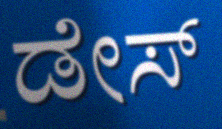
ಡೇಸ್